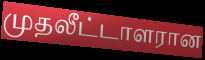
முதலீட்டாளரான